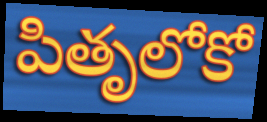
పితృలోకో